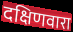
दक्षिणवारा